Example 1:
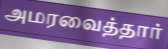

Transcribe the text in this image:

அமரவைத்தார்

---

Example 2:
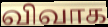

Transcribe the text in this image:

விவாக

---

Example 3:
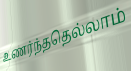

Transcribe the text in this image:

உணர்ந்ததெல்லாம்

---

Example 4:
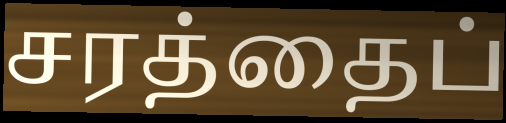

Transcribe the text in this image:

சரத்தைப்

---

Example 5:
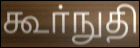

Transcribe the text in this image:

கூர்நுதி